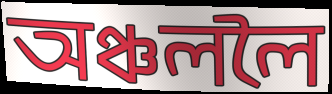
অঞ্চললৈ